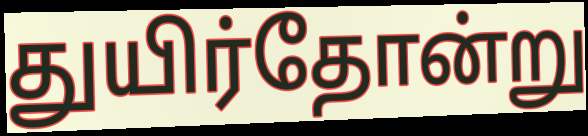
துயிர்தோன்று